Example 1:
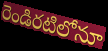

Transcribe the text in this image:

రెండిరటిలోనూ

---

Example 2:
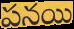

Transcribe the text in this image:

పనయి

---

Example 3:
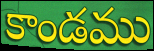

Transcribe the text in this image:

కాండము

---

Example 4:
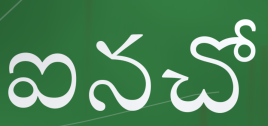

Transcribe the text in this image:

ఐనచో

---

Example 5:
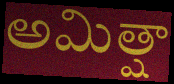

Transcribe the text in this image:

అమిత్షా